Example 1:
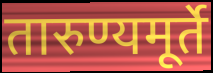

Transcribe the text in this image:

तारुण्यमूर्ते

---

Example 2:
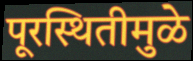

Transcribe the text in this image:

पूरस्थितीमुळे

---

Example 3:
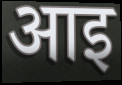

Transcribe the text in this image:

आइ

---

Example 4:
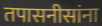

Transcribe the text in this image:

तपासनीसांना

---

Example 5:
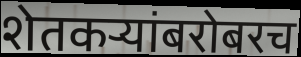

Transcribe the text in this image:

शेतकऱ्यांबरोबरच